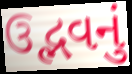
ઉદ્ભવનું